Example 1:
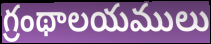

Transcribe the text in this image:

గ్రంథాలయములు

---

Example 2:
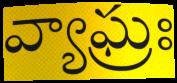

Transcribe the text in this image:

వ్యాఘ్రః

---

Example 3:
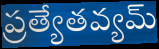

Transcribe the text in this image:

ప్రత్యేతవ్యమ్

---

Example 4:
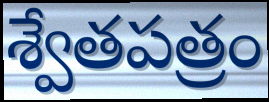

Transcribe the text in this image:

శ్వేతపత్రం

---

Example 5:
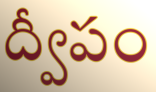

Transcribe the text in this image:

ద్వీపం